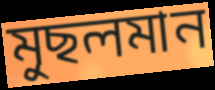
মুছলমান